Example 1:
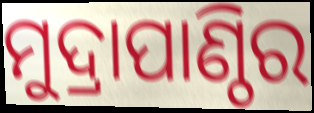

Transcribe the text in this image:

ମୁଦ୍ରାପାଣ୍ଠିର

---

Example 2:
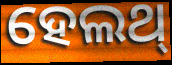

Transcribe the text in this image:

ହେଲଥ୍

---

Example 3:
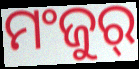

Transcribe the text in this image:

ମଂଜୁର୍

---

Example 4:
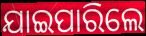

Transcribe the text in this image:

ଯାଇପାରିଲେ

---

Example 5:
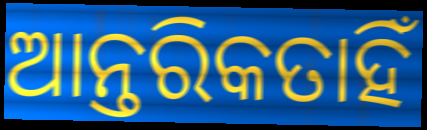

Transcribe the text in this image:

ଆନ୍ତରିକତାହିଁ